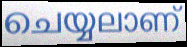
ചെയ്യലാണ്